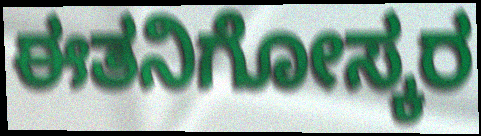
ಈತನಿಗೋಸ್ಕರ